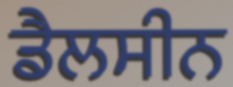
ਡੈਲਸੀਨ